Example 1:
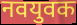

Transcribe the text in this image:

नवयुवक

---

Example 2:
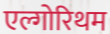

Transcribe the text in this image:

एल्गोरिथम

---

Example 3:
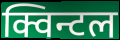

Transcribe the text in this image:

क्विन्टल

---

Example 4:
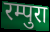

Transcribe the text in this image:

रम्पुरा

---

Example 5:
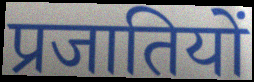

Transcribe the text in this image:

प्रजातियों